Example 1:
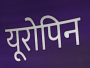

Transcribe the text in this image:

यूरोपिन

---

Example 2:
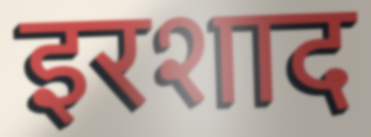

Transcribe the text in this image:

इरशाद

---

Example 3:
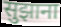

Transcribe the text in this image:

सुझाना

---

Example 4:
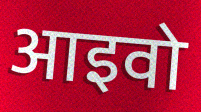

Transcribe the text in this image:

आइवो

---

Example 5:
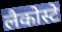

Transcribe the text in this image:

लैकोस्टे